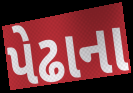
પેઢાના